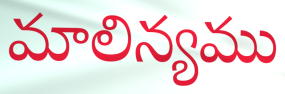
మాలిన్యము